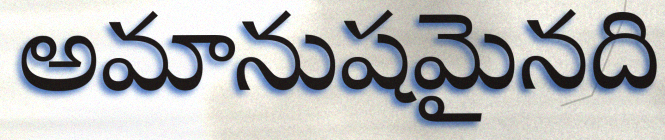
అమానుషమైనది